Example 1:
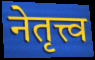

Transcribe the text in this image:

नेतृत्त्व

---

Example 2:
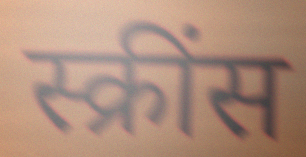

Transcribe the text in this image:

स्क्रींस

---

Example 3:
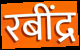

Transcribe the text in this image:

रबींद्र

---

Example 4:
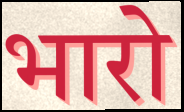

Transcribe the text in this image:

भारो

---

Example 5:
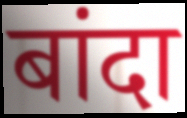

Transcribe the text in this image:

बांदा